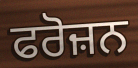
ਫਰੋਜ਼ਨ